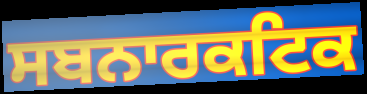
ਸਬਨਾਰਕਟਿਕ